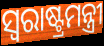
ସ୍ବରାଷ୍ଟ୍ରମନ୍ତ୍ରୀ